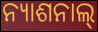
ନ୍ୟାଶନାଲ୍